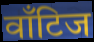
वाँटिज